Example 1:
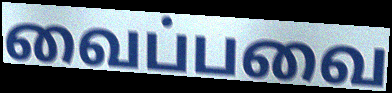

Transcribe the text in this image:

வைப்பவை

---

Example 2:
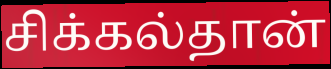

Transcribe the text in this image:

சிக்கல்தான்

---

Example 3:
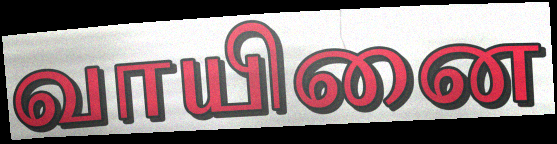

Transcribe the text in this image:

வாயினை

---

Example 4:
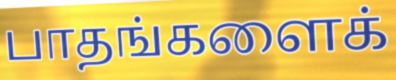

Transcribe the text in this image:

பாதங்களைக்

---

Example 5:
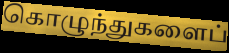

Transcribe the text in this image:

கொழுந்துகளைப்